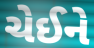
ચેઈને